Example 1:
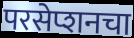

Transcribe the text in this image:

परसेप्शनचा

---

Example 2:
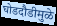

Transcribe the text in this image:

घोडदौडीमुळे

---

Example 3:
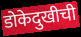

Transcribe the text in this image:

डोकेदुखीची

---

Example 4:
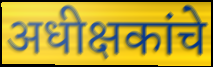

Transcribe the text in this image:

अधीक्षकांचे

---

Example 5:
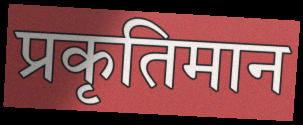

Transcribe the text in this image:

प्रकृतिमान